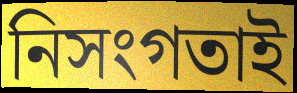
নিসংগতাই